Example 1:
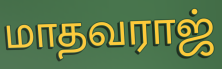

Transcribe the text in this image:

மாதவராஜ்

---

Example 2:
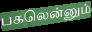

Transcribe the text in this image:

பகலென்னும்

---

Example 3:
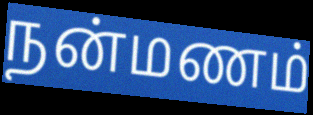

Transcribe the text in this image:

நன்மணம்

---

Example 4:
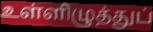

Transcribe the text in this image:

உள்ளிழுத்துப்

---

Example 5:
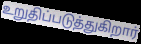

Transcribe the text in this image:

உறுதிப்படுத்துகிறார்